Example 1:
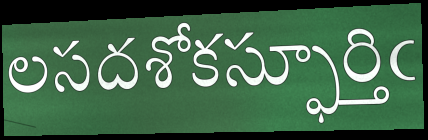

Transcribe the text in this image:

లసదశోకస్ఫూర్తిఁ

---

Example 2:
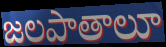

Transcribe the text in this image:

జలపాతాలూ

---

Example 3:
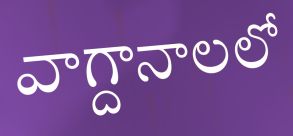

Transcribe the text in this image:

వాగ్దానాలలో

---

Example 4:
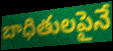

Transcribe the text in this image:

బాధితులపైనే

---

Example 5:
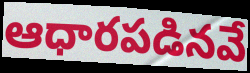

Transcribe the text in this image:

ఆధారపడినవే